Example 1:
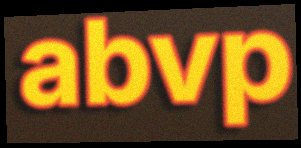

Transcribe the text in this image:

abvp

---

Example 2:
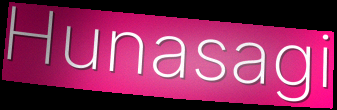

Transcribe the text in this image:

Hunasagi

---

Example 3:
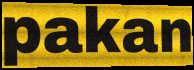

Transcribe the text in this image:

pakan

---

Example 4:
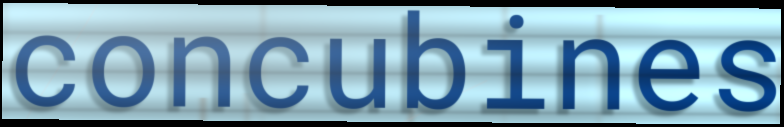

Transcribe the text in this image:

concubines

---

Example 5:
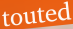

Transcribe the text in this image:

touted